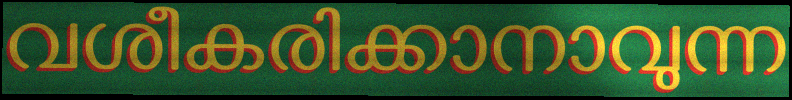
വശീകരിക്കാനാവുന്ന